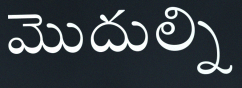
మొదుల్ని